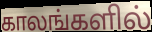
காலங்களில்